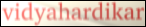
vidyahardikar